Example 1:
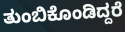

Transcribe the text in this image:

ತುಂಬಿಕೊಂಡಿದ್ದರೆ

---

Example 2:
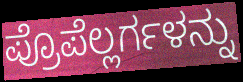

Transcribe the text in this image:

ಪ್ರೊಪೆಲ್ಲರ್ಗಳನ್ನು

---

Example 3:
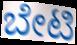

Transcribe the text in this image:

ಬೇಟಿ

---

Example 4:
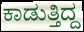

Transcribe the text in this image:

ಕಾಡುತ್ತಿದ್ದ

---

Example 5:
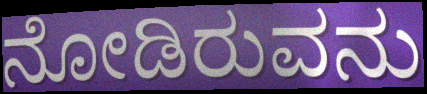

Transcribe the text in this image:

ನೋಡಿರುವನು